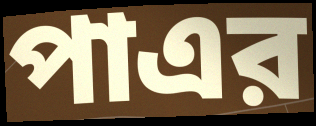
পাএর